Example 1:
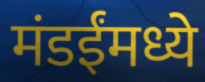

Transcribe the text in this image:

मंडईंमध्ये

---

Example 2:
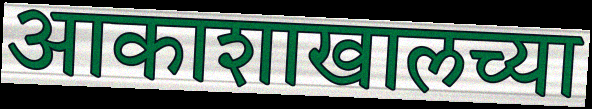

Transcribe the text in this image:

आकाशाखालच्या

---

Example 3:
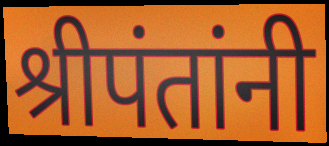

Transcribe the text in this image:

श्रीपंतांनी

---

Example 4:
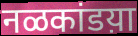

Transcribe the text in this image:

नळकांडय़ा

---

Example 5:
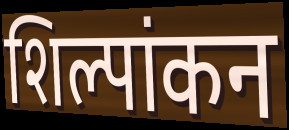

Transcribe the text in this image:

शिल्पांकन